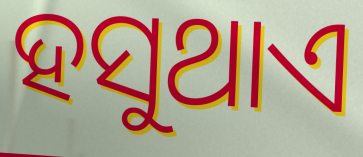
ହସୁଥାଏ